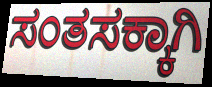
ಸಂತಸಕ್ಕಾಗಿ